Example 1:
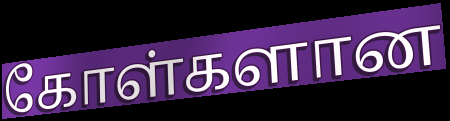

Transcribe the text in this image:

கோள்களான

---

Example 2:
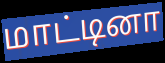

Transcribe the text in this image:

மாட்டினா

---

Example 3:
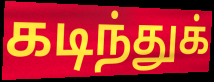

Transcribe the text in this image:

கடிந்துக்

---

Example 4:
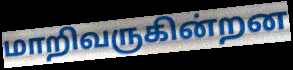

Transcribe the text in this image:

மாறிவருகின்றன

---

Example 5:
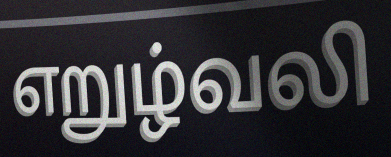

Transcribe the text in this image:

எறுழ்வலி